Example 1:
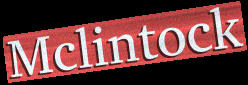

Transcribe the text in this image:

Mclintock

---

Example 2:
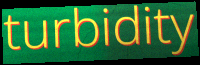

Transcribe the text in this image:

turbidity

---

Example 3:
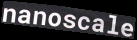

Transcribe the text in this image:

nanoscale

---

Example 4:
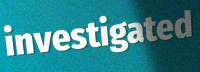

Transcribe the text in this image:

investigated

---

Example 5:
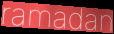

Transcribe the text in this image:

ramadan